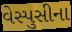
વેસ્પુસીના